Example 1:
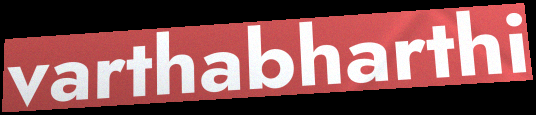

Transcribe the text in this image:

varthabharthi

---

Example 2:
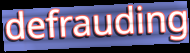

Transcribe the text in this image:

defrauding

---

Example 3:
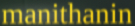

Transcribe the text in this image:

manithanin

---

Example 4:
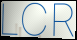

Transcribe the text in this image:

LCR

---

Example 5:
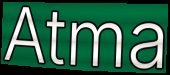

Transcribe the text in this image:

Atma